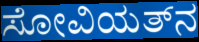
ಸೋವಿಯತ್‌ನ